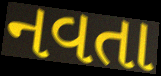
નવતા